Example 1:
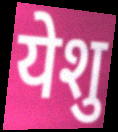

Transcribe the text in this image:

येशु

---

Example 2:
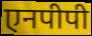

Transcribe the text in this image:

एनपीपी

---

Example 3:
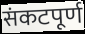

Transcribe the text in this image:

संकटपूर्ण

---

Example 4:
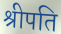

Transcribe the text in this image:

श्रीपति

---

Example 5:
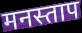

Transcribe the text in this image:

मनस्ताप